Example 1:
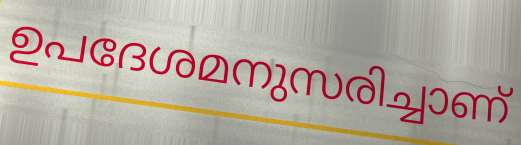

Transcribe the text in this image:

ഉപദേശമനുസരിച്ചാണ്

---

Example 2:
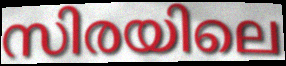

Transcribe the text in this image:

സിരയിലെ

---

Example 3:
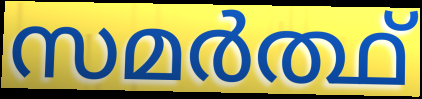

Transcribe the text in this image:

സമർത്ഥ്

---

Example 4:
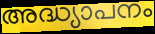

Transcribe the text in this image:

അദ്ധ്യാപനം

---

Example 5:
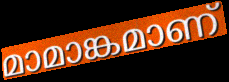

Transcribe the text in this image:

മാമാങ്കമാണ്